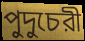
পুদুচেরী